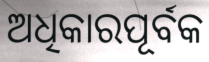
ଅଧିକାରପୂର୍ବକ